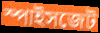
স্পাইসজেট